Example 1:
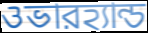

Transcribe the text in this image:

ওভারহ্যান্ড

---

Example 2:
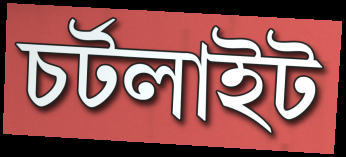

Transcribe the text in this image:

চর্টলাইট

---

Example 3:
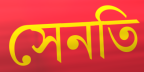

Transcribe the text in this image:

সেনতি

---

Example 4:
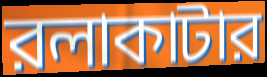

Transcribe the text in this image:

রলাকাটার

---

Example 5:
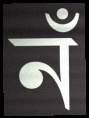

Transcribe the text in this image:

নঁ